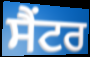
ਸੈਂਟਰ